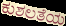
ಕುಶಲತೆಯ